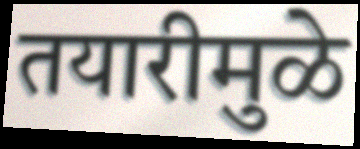
तयारीमुळे